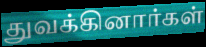
துவக்கினார்கள்